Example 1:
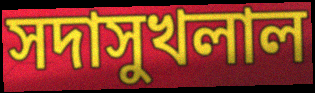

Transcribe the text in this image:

সদাসুখলাল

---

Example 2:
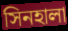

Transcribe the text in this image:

সিনহালা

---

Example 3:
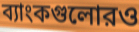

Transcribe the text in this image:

ব্যাংকগুলোরও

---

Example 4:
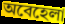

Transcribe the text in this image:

অবেহেলা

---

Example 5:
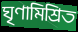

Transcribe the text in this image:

ঘৃণামিশ্রিত